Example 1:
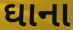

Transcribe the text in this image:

ઘાના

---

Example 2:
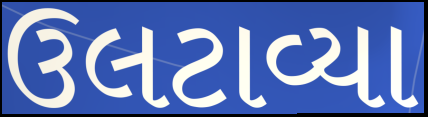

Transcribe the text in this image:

ઉલટાવ્યા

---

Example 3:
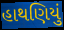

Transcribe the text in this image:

હાથણિયું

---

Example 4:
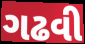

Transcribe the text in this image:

ગઢવી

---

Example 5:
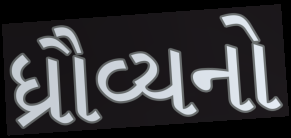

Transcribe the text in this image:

ધ્રૌવ્યનો